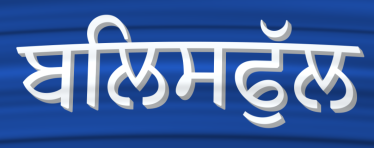
ਬਲਿਸਫੁੱਲ